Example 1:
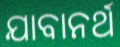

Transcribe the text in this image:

ଯାବାନର୍ଥ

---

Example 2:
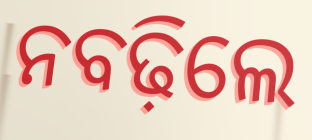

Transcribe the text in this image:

ନବଢ଼ିଲେ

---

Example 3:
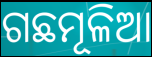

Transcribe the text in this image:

ଗଛମୂଳିଆ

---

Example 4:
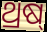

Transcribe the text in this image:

ଥ୍ରଷ୍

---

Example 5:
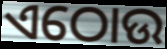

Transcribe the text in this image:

ଏଠୋଉ